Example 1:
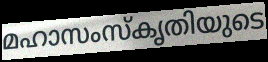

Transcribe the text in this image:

മഹാസംസ്കൃതിയുടെ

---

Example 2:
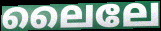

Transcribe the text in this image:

ലൈലേ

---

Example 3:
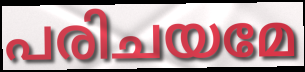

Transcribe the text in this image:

പരിചയമേ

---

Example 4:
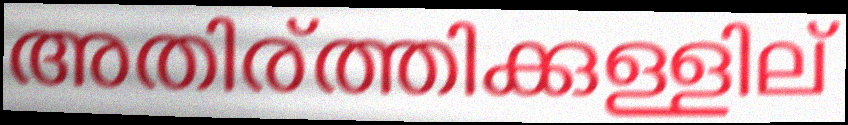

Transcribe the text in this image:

അതിര്ത്തിക്കുള്ളില്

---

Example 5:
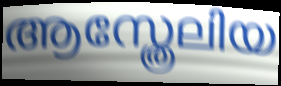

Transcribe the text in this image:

ആസ്ത്രേലിയ